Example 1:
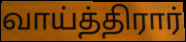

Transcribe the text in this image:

வாய்த்திரார்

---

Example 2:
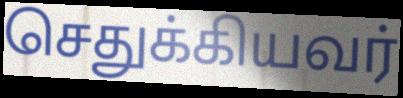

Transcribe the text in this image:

செதுக்கியவர்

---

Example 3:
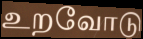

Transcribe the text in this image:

உறவோடு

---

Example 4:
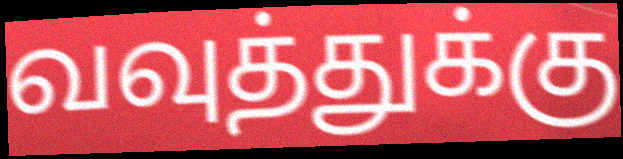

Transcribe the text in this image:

வவுத்துக்கு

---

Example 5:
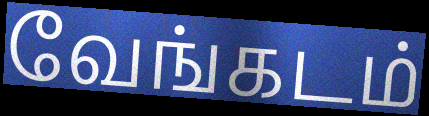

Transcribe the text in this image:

வேங்கடம்